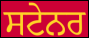
ਸਟੇਨਰ